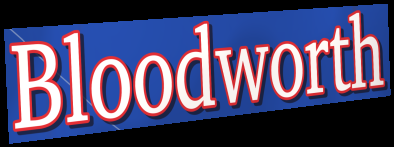
Bloodworth